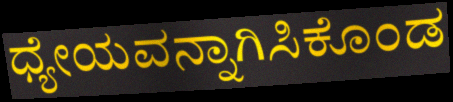
ಧ್ಯೇಯವನ್ನಾಗಿಸಿಕೊಂಡ